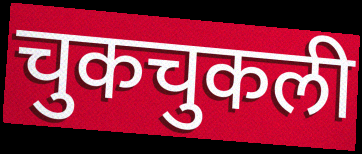
चुकचुकली